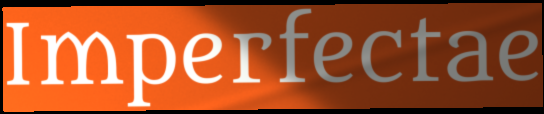
Imperfectae